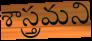
శాస్త్రమని